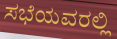
ಸಭೆಯವರಲ್ಲಿ